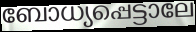
ബോധ്യപ്പെട്ടാലേ